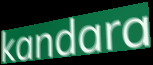
kandara